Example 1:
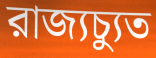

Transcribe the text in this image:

রাজ্যচ্যুত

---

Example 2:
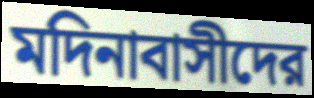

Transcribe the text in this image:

মদিনাবাসীদের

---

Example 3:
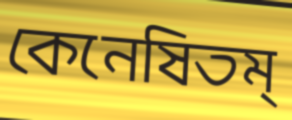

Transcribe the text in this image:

কেনেষিতম্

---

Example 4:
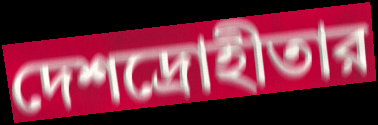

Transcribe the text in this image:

দেশদ্রোহীতার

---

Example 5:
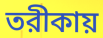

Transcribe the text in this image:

তরীকায়